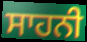
ਸਾਹਨੀ